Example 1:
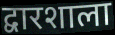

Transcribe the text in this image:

द्वारशाला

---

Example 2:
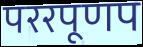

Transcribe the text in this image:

पररपूणप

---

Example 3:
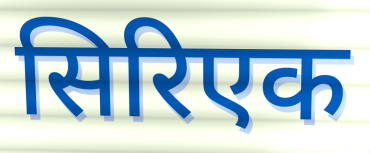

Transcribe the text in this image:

सिरिएक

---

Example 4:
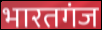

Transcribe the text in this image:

भारतगंज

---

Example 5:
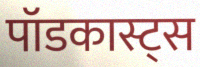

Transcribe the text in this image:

पॉडकास्ट्स